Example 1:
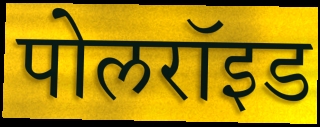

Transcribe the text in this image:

पोलरॉइड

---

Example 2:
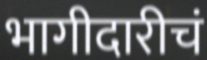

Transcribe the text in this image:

भागीदारीचं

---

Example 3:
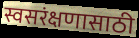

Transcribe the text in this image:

स्वसरंक्षणासाठी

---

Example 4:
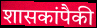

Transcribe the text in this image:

शासकांपैकी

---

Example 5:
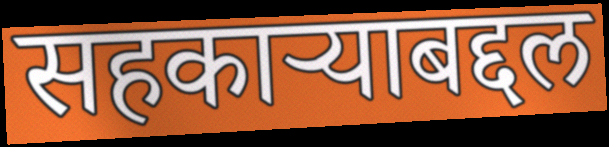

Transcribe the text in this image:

सहकाऱ्याबद्दल